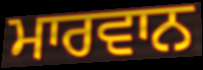
ਮਾਰਵਾਨ